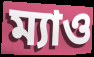
ম্যাও